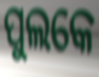
ପୁଲକେ